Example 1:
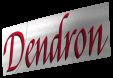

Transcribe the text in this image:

Dendron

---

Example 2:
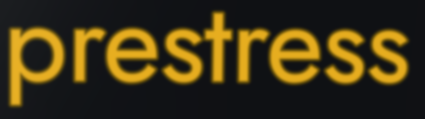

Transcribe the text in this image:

prestress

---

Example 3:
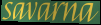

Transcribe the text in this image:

savarna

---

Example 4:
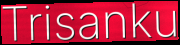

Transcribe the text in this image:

Trisanku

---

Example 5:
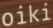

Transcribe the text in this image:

oiki